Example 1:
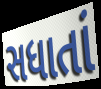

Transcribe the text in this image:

સધાતાં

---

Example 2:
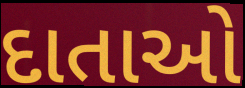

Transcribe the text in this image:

દાતાઓ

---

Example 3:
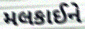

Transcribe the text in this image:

મલકાઈને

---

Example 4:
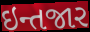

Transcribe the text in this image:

ઇન્તજાર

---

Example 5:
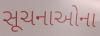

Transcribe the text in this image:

સૂચનાઓના